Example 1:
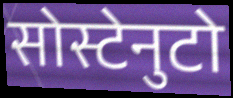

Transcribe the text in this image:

सोस्टेनुटो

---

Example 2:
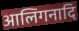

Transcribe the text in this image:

आलिंगनादि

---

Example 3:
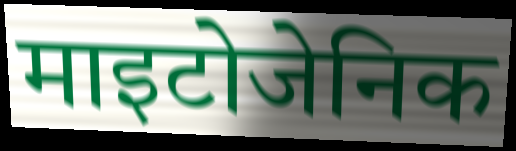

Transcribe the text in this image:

माइटोजेनिक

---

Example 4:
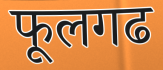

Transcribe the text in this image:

फूलगढ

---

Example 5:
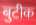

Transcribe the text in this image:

बुटीक